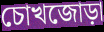
চোখজোড়া